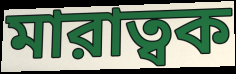
মারাত্বক